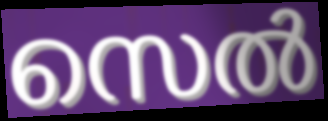
സെൽ